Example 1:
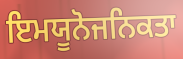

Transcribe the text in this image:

ਇਮਯੂਨੋਜਨਿਕਤਾ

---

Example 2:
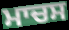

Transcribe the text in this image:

ਮਾਚਸ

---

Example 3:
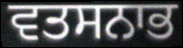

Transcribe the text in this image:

ਵਤਸਨਾਭ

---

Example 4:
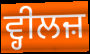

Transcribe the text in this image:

ਵ੍ਹੀਲਜ਼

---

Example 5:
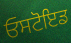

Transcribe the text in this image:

ਓਸਟੋਇਡ